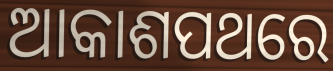
ଆକାଶପଥରେ